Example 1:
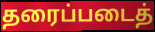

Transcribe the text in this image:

தரைப்படைத்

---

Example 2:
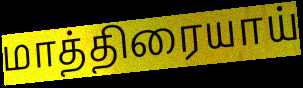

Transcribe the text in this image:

மாத்திரையாய்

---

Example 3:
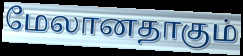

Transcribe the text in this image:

மேலானதாகும்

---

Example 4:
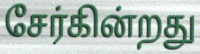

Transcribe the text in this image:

சேர்கின்றது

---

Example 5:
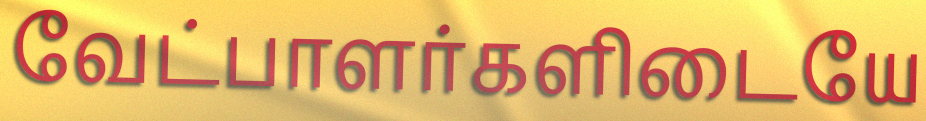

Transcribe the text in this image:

வேட்பாளர்களிடையே